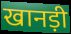
खानड़ी